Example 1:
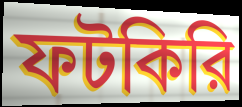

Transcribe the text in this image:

ফটকিরি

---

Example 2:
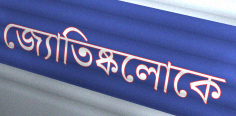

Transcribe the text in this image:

জ্যোতিষ্কলোকে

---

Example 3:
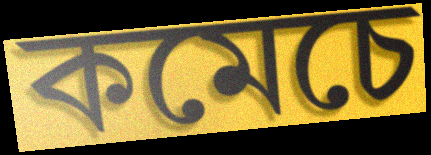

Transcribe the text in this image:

কমেচে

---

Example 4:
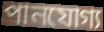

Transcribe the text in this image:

পানযোগ্য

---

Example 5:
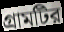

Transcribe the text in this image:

গ্রামটির